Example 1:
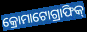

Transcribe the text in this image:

କ୍ରୋମାଟୋଗ୍ରାଫିକ୍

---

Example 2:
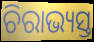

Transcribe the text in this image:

ଚିରାଭ୍ୟସ୍ତ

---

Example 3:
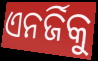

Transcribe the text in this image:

ଏନର୍ଜିକୁ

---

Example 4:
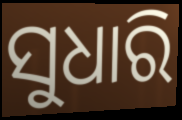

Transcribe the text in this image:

ସୁଧାରି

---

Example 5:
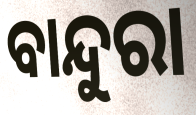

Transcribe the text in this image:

ବାନ୍ଦୁରା